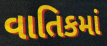
વાતિકમાં